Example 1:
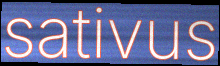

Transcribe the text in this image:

sativus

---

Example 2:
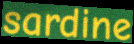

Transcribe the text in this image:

sardine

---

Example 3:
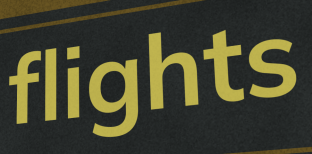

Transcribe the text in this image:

flights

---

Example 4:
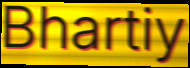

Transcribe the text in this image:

Bhartiy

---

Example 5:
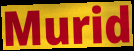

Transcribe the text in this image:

Murid